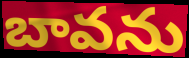
బావను